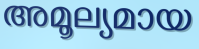
അമൂല്യമായ